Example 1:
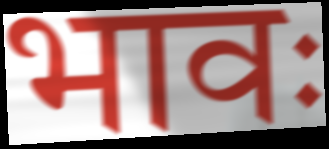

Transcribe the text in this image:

भावः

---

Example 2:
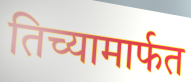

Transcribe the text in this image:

तिच्यामार्फत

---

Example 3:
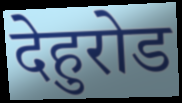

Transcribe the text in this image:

देहुरोड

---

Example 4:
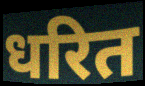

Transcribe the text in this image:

धरित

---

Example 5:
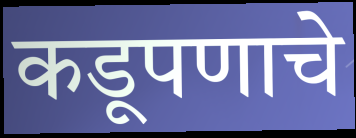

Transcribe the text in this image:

कडूपणाचे